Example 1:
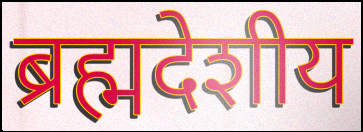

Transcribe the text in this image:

ब्रह्मदेशीय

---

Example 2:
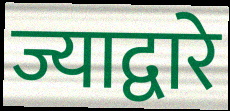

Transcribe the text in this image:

ज्याद्वारे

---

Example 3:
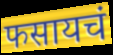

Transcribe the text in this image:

फसायचं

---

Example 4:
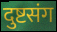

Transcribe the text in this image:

दुष्टसंग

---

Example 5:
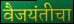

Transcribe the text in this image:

वैजयंतीचा